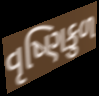
વૃષ્ણિકુળ